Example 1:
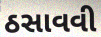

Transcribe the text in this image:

ઠસાવવી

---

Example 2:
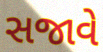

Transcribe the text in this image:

સજાવે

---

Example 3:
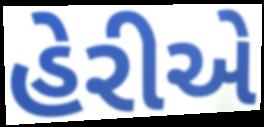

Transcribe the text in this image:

હેરીએ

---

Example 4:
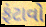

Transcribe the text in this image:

ફંટાવો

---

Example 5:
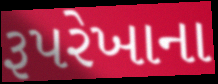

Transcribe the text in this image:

રૂપરેખાના